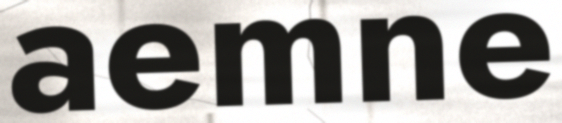
aemne